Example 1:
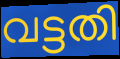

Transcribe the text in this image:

വട്ടതി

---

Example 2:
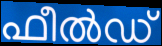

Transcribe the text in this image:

ഫീൽഡ്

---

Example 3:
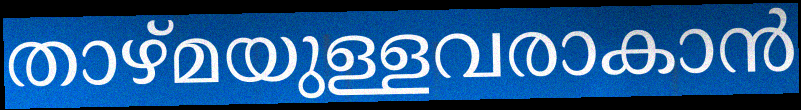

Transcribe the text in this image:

താഴ്മയുള്ളവരാകാൻ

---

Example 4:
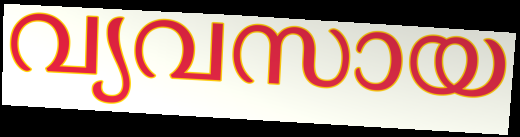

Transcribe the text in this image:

വ്യവസായ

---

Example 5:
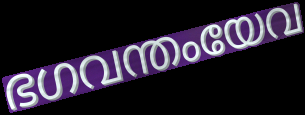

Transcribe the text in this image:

ഭഗവന്തംയേവ